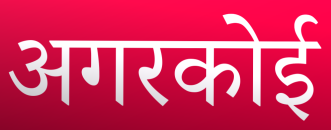
अगरकोई